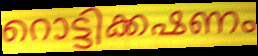
റൊട്ടിക്കഷണം